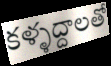
కళ్ళద్దాలతో